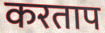
करताप